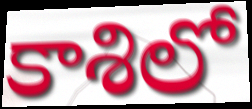
కాశిలో